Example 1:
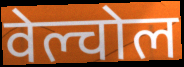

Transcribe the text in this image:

वेल्चोल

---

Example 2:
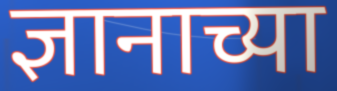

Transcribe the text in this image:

ज्ञानाच्या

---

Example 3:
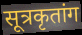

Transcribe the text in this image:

सूत्रकृतांग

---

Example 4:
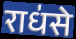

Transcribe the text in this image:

राध॑से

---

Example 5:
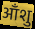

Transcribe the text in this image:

आँशु